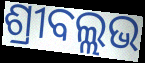
ଶ୍ରୀବଲ୍ଲଭ